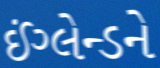
ઈંગ્લેન્ડને